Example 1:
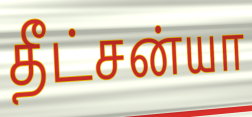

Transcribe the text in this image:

தீட்சன்யா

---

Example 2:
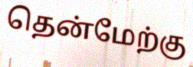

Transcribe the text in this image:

தென்மேற்கு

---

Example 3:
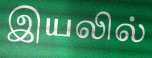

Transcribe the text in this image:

இயலில்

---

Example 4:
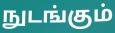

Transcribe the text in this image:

நுடங்கும்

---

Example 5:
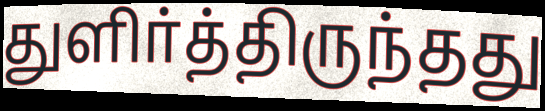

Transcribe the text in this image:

துளிர்த்திருந்தது